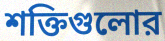
শক্তিগুলোর